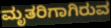
ಮೃತರಿಗಾಗಿರುವ